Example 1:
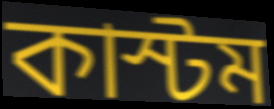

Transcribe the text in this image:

কাস্টম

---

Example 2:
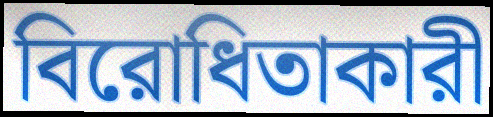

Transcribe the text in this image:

বিরোধিতাকারী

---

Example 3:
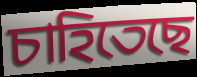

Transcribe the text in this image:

চাহিতেছে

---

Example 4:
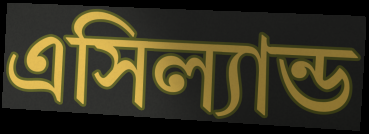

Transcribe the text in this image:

এসিল্যান্ড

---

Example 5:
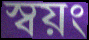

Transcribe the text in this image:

স্বয়ং